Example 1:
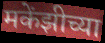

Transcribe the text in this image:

मकेंझीच्या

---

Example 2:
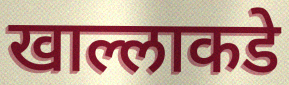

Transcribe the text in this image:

खाल्लाकडे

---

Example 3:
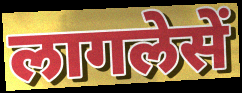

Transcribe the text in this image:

लागलेसें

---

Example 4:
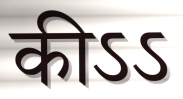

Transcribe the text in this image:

कीऽऽ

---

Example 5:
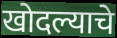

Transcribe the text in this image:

खोदल्याचे